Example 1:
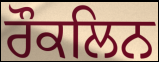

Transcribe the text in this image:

ਰੌਕਲਿਨ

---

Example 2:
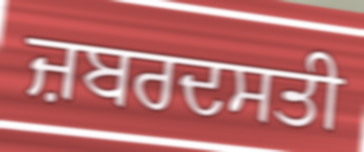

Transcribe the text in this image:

ਜ਼ਬਰਦਸਤੀ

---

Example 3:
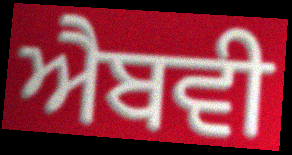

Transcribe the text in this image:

ਐਬਵੀ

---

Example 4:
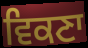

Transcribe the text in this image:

ਵਿਕਣਾ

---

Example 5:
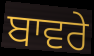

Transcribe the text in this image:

ਬਾਵਰੇ